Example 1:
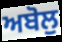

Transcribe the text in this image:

ਅਬੋਲੁ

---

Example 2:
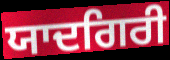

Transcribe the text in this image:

ਯਾਦਗਿਰੀ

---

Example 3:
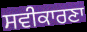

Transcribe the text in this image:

ਸਵੀਕਾਰਣਾ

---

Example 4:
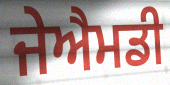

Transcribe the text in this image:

ਜੇਐਮਡੀ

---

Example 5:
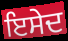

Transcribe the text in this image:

ਇਸੇਦ